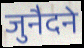
जुनैदने